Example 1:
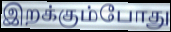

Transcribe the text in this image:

இறக்கும்போது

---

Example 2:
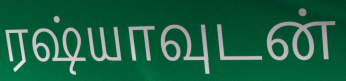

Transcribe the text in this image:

ரஷ்யாவுடன்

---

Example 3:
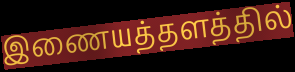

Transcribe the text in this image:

இணையத்தளத்தில்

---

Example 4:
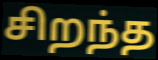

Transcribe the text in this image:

சிறந்த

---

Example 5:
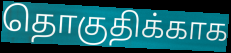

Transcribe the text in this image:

தொகுதிக்காக